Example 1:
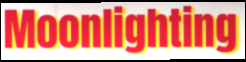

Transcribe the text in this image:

Moonlighting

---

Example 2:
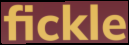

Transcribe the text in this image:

fickle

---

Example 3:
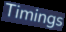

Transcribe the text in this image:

Timings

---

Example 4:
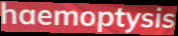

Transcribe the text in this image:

haemoptysis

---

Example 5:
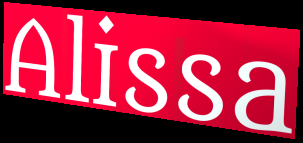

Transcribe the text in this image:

Alissa